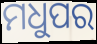
ମଧୁପର